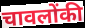
चावलोंकी